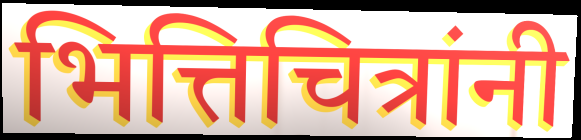
भित्तिचित्रांनी